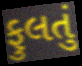
ફુલતું